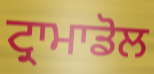
ਟ੍ਰਾਮਾਡੋਲ